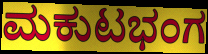
ಮಕುಟಭಂಗ